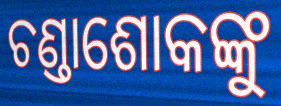
ଚଣ୍ଡାଶୋକଙ୍କୁ